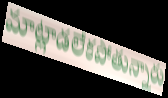
మాట్లాడలేకపోతున్నారు